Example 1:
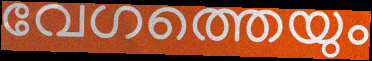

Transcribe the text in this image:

വേഗത്തെയും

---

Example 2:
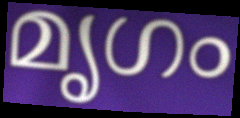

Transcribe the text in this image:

മൃഗം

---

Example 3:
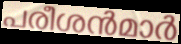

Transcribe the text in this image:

പരീശൻമാർ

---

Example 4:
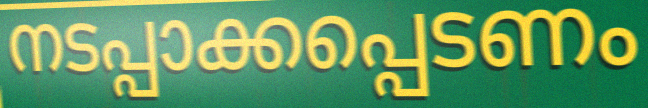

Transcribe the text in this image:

നടപ്പാക്കപ്പെടണം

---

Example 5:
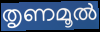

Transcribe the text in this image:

തൃണമൂൽ